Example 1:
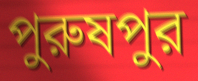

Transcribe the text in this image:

পুরুষপুর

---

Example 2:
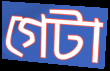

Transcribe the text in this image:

গেটা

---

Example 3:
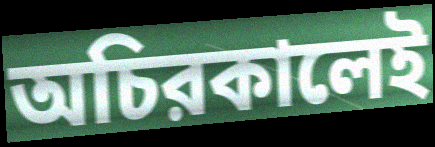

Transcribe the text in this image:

অচিরকালেই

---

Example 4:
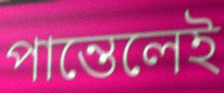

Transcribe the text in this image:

পান্তেলেই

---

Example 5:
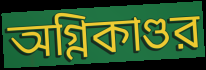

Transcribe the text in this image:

অগ্নিকাণ্ডর